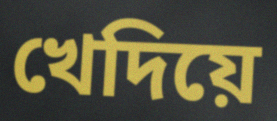
খেদিয়ে